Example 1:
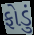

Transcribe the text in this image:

ફોડું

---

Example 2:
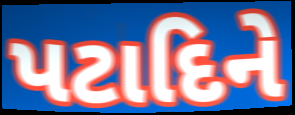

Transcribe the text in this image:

પટાદિને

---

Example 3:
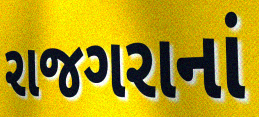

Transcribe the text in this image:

રાજગરાનાં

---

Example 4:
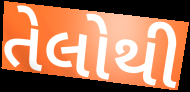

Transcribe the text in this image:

તેલોથી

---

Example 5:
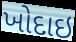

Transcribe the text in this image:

ખોદાઇ